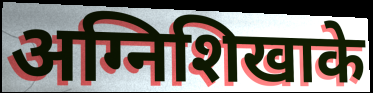
अग्निशिखाके